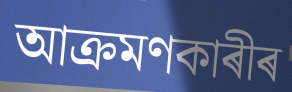
আক্ৰমণকাৰীৰ